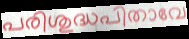
പരിശുദ്ധപിതാവേ